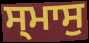
ਸ੍ਮਾਸੁ